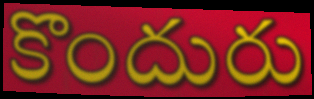
కొందురు